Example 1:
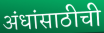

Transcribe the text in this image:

अंधांसाठीची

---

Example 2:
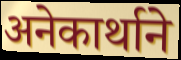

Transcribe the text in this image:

अनेकार्थाने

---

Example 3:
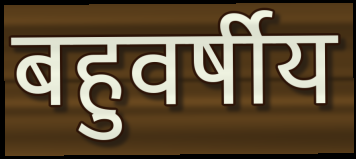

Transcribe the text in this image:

बहुवर्षीय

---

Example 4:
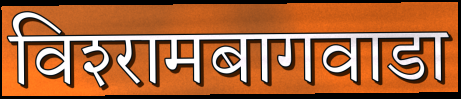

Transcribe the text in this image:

विश्रामबागवाडा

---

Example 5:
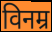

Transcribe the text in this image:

विनम्र